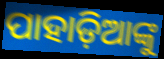
ପାହାଡ଼ିଆଙ୍କୁ